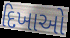
દિખાઓ